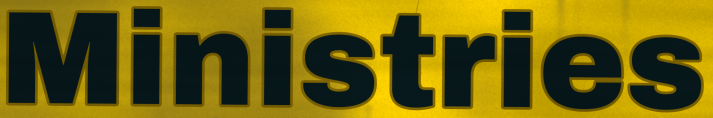
Ministries